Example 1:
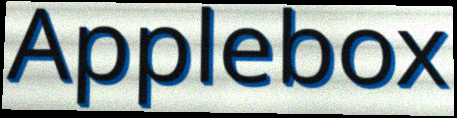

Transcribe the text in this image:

Applebox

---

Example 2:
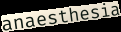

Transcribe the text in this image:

anaesthesia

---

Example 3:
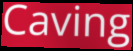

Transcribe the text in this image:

Caving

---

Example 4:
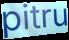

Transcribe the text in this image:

pitru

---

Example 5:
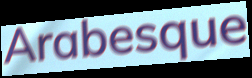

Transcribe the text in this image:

Arabesque